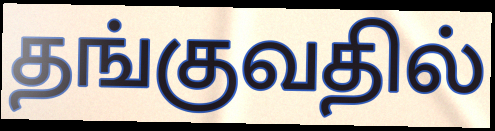
தங்குவதில்